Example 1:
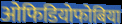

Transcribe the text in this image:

ओफिडियोफोबिया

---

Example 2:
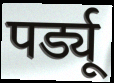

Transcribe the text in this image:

पर्ड्यू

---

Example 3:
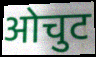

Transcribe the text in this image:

ओचुट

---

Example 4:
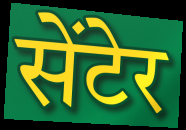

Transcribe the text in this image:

सेंटेर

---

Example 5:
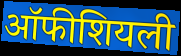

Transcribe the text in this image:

ऑफीशियली